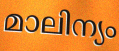
മാലിന്യം